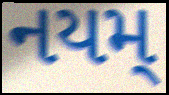
નયમ્